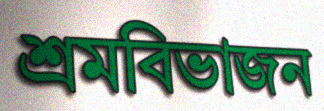
শ্রমবিভাজন